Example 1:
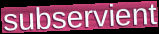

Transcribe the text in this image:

subservient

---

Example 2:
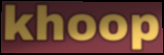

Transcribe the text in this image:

khoop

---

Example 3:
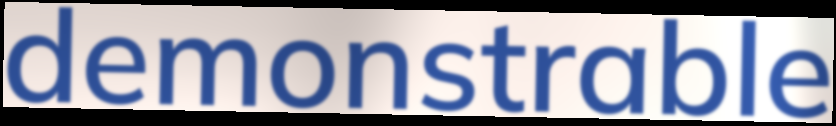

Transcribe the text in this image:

demonstrable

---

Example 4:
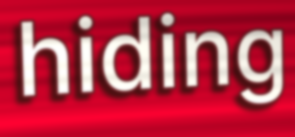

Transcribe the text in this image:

hiding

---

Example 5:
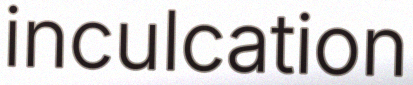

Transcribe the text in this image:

inculcation